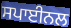
ਸਪਾਈਨਲ